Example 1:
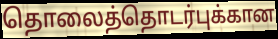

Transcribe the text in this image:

தொலைத்தொடர்புக்கான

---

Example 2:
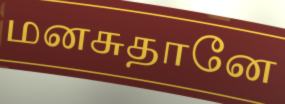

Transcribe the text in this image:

மனசுதானே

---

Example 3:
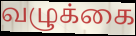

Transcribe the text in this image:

வழுக்கை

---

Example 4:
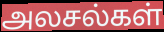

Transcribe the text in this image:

அலசல்கள்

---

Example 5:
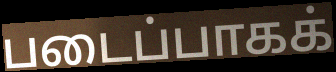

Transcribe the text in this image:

படைப்பாகக்